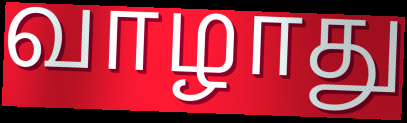
வாழாது